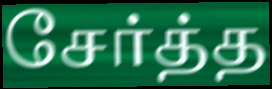
சேர்த்த